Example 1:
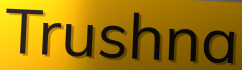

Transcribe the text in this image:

Trushna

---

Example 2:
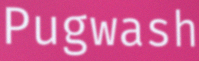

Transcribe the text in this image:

Pugwash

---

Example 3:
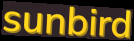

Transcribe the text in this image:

sunbird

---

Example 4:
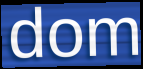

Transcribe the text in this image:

dom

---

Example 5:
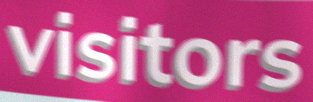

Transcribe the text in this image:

visitors